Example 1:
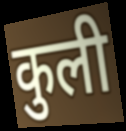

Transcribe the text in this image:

कुली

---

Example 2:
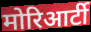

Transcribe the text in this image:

मोरिआर्टी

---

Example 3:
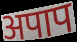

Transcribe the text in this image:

अपाप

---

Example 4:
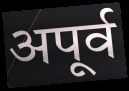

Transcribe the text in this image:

अपूर्व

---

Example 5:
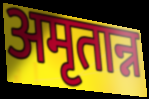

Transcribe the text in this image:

अमृतान्न